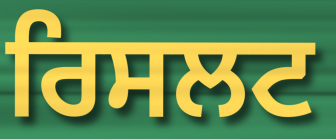
ਰਿਸਲਟ